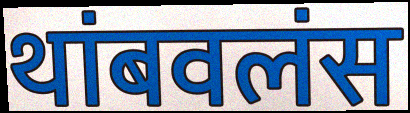
थांबवलंस